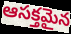
ఆసక్తమైన